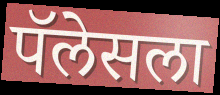
पॅलेसला